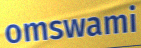
omswami